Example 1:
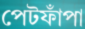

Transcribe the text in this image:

পেটফাঁপা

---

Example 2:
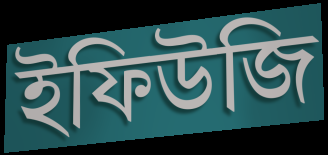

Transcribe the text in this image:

ইফিউজি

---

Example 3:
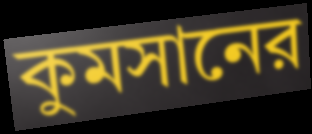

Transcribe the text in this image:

কুমসানের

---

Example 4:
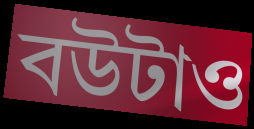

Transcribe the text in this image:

বউটাও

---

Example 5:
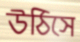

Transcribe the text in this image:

উঠিসে